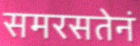
समरसतेनं